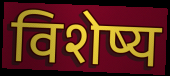
विशेष्य